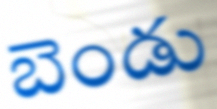
బెండు